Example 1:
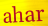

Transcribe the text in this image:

ahar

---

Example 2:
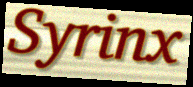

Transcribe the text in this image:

Syrinx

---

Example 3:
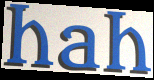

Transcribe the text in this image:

hah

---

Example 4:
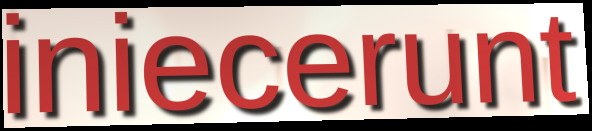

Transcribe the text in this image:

iniecerunt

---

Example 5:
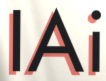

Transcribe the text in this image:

IAi